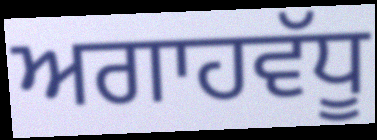
ਅਗਾਹਵੱਧੂ